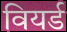
वियर्ड